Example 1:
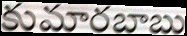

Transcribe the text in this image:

కుమారబాబు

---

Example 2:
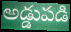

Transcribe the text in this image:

అడ్డుపడి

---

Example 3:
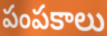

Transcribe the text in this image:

పంపకాలు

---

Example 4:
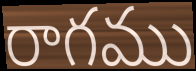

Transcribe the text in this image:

రాగము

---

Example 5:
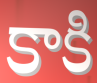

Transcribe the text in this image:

కాకి